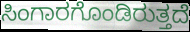
ಸಿಂಗಾರಗೊಂಡಿರುತ್ತದೆ